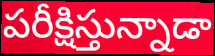
పరీక్షిస్తున్నాడా